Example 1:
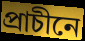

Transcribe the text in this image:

প্ৰাচীনে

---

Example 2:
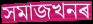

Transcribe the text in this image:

সমাজখনৰ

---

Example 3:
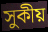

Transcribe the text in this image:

সুকীয়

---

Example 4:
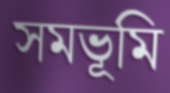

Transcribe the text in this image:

সমভূমি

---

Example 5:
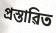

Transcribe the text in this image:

প্ৰস্তাৱিত